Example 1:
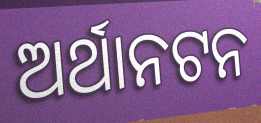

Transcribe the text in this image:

ଅର୍ଥାନଟନ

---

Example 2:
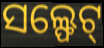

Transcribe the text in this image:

ସଲ୍ଫେଟ୍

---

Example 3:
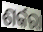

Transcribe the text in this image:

ଶର୍କରା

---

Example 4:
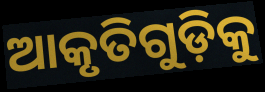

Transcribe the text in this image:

ଆକୃତିଗୁଡ଼ିକୁ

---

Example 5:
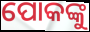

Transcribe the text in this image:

ପୋକଙ୍କୁ